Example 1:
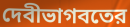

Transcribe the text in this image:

দেবীভাগবতের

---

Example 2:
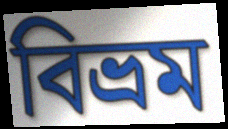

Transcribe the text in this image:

বিভ্রম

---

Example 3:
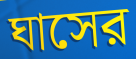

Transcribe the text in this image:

ঘাসের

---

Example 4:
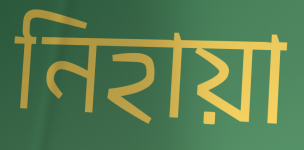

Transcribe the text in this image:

নিহায়া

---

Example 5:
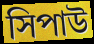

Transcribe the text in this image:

সিপাউ